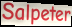
Salpeter